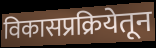
विकासप्रक्रियेतून